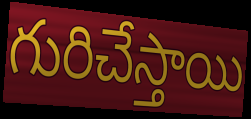
గురిచేస్తాయి